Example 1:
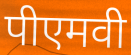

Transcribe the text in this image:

पीएमवी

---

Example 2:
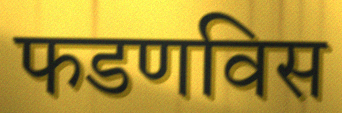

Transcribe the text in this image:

फडणविस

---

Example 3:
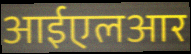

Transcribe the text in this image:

आईएलआर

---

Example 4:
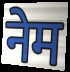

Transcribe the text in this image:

नेम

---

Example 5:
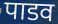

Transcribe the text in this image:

पाडव